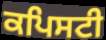
ਕਪਿਸਟੀ